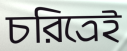
চরিত্রেই